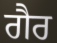
ਗੈਰ